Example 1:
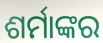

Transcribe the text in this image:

ଶର୍ମାଙ୍କର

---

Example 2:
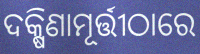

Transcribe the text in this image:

ଦକ୍ଷିଣାମୂର୍ତ୍ତୀଠାରେ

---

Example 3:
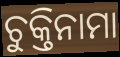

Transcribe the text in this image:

ଚୁକ୍ତିନାମା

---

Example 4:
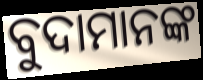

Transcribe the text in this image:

ବୁଦାମାନଙ୍କ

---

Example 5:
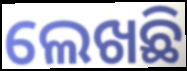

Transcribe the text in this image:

ଲେଖଛି